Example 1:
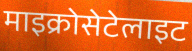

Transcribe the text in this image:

माइक्रोसेटेलाइट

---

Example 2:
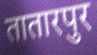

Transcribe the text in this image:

तातारपुर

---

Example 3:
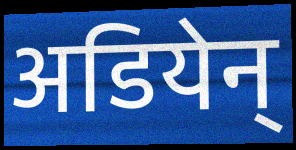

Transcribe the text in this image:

अडियेन्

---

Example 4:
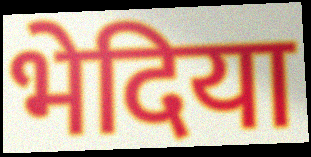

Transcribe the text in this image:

भेदिया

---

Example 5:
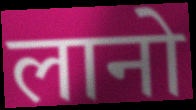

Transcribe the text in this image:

लानो